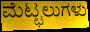
ಮೆಟ್ಟಲುಗಳು